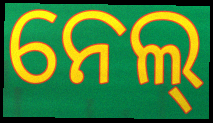
ନେଲ୍